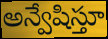
అన్వేషిస్తూ